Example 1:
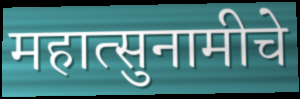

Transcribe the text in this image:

महात्सुनामीचे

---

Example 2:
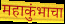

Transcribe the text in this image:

महाकुंभाचा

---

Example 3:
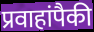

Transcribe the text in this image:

प्रवाहांपैकी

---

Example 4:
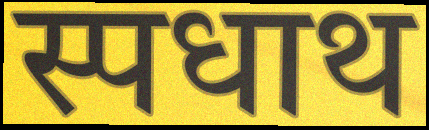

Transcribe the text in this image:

स्पधाथ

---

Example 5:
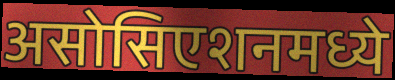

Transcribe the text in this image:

असोसिएशनमध्ये